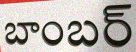
బాంబర్